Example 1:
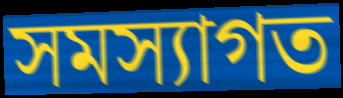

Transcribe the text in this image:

সমস্যাগত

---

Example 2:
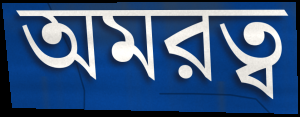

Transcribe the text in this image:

অমরত্ব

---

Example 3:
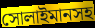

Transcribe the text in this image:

সোলাইমানসহ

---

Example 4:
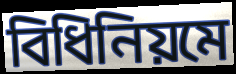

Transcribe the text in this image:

বিধিনিয়মে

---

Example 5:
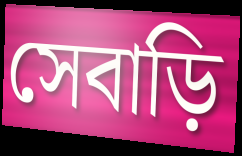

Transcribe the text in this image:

সেবাড়ি